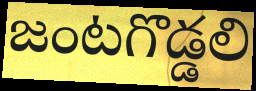
జంటగొడ్డలి